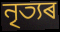
নৃত্যৰ